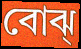
বোঝ্